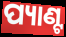
ପ୍ୟାଣ୍ଟ